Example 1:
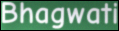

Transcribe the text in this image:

Bhagwati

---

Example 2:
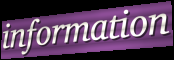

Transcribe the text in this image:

information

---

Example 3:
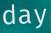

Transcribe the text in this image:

day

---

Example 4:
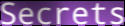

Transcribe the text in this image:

Secrets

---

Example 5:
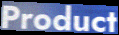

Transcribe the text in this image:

Product